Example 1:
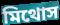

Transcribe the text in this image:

মিথোস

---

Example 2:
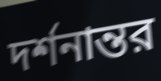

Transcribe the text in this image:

দর্শনান্তর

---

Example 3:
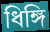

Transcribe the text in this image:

ধিঙ্গি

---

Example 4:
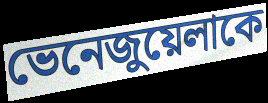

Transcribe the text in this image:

ভেনেজুয়েলাকে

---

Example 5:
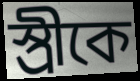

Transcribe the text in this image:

স্ত্রীকে